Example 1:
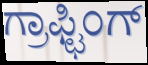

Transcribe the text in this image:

ಗ್ರಾಫ್ಟಿಂಗ್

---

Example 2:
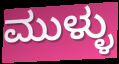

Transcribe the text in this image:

ಮುಳ್ಳು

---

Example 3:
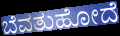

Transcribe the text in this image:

ಬೆವತುಹೋದೆ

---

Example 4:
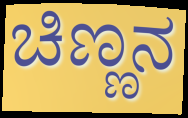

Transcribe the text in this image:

ಚಿಣ್ಣನ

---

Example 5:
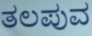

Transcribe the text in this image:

ತಲಪುವ